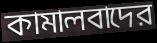
কামালবাদের